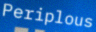
Periplous